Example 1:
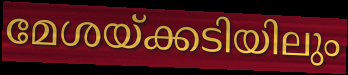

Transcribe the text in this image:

മേശയ്ക്കടിയിലും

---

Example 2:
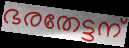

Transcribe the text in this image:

ഭരതേട്ടന്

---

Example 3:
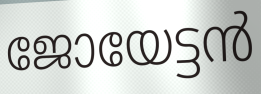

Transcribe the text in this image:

ജോയേട്ടൻ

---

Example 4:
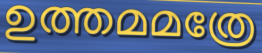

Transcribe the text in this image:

ഉത്തമമത്രേ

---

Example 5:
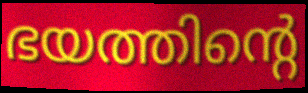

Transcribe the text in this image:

ഭയത്തിന്റെ